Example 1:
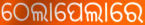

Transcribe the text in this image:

ଠେଲାପେଲାରେ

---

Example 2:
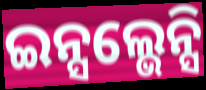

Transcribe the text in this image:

ଇନ୍ସଲ୍ଭେନ୍ସି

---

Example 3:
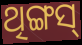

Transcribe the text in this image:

ଥିଙ୍ଗସ୍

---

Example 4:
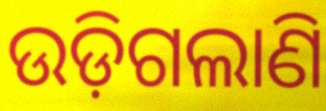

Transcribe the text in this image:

ଉଡ଼ିଗଲାଣି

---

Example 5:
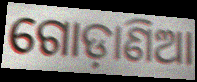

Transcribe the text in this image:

ଗୋଡ଼ାଣିଆ